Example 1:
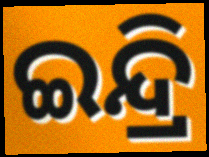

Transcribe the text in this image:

ଇନ୍ଦ୍ରି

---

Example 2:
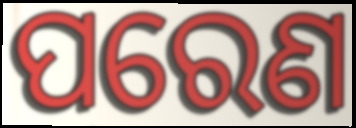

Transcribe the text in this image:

ପରେଣ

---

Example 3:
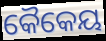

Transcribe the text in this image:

କୈକେୟ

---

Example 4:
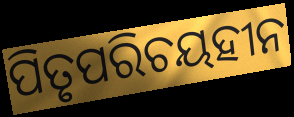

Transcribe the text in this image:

ପିତୃପରିଚୟହୀନ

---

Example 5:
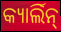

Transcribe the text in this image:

କ୍ୟାର୍ଲିନ୍